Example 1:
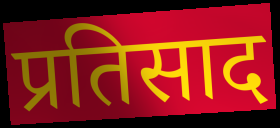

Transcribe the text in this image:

प्रतिसाद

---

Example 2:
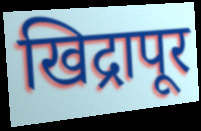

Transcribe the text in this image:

खिद्रापूर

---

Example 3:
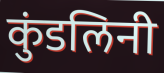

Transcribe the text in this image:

कुंडलिनी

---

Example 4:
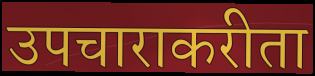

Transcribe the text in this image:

उपचाराकरीता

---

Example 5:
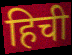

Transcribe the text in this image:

हिची